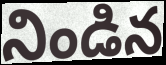
నిండిన